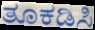
ತೂಕಡಿಸಿ